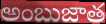
అంబుజాత